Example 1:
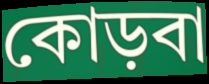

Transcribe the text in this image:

কোড়বা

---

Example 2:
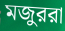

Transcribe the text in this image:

মজুররা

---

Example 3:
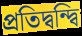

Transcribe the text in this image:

প্রতিদ্বন্দ্বি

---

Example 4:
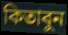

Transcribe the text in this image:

কিতাবুন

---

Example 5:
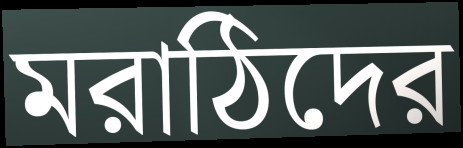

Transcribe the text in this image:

মরাঠিদের